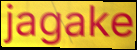
jagake